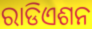
ରାଡିଏଶନ